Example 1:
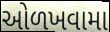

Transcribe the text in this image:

ઓળખવામા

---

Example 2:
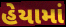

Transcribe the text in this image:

હેયામાં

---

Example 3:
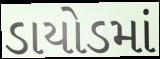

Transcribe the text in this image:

ડાયોડમાં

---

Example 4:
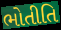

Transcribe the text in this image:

ભોતીતિ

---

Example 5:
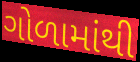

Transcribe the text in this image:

ગોળામાંથી